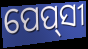
ପେପ୍‌ସୀ